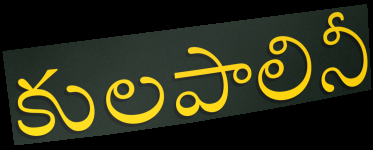
కులపాలినీ